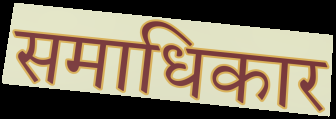
समाधिकार